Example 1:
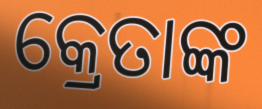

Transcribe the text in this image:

କ୍ରେତାଙ୍କ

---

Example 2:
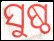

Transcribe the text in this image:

ସୁଷ୍ଠ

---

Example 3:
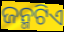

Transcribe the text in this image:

ଜନ୍ମଟିଏ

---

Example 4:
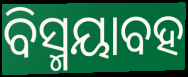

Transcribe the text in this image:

ବିସ୍ମୟାବହ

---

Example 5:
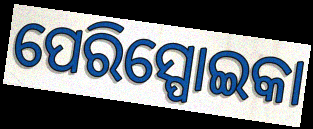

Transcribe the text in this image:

ପେରିସ୍ପୋଇକା